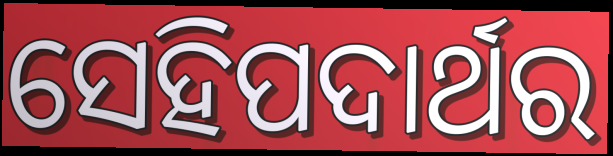
ସେହିପଦାର୍ଥର